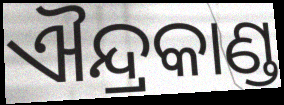
ଐନ୍ଦ୍ରକାଣ୍ଡ